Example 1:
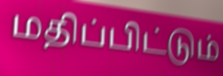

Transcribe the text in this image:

மதிப்பிட்டும்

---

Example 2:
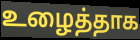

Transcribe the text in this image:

உழைத்தாக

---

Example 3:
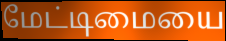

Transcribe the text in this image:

மேட்டிமையை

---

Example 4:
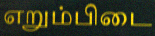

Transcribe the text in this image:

எறும்பிடை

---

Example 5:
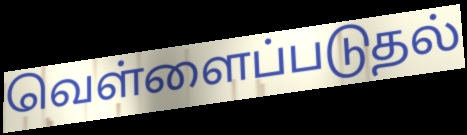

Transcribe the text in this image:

வெள்ளைப்படுதல்